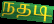
நதடி